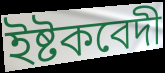
ইষ্টকবেদী